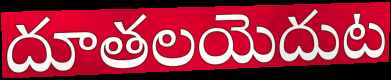
దూతలయెదుట